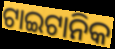
ଟାଇଟାନିକ